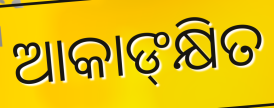
ଆକାଙ୍‍କ୍ଷିତ